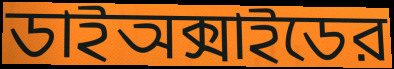
ডাইঅক্সাইডের